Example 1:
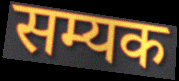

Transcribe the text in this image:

सम्यक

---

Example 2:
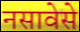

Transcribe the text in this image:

नसावेसे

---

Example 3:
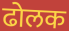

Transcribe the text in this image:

ढोलक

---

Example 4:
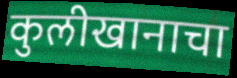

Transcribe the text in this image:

कुलीखानाचा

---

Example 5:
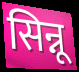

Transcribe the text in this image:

सिन्नू